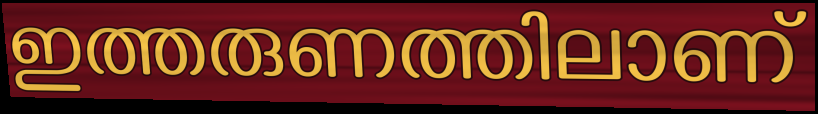
ഇത്തരുണത്തിലാണ്